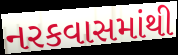
નરકવાસમાંથી